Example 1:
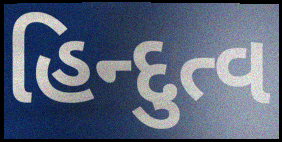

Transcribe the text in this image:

હિન્દુત્વ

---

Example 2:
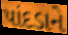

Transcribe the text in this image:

પાંદડાને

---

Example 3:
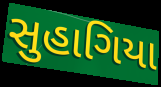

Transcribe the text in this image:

સુહાગિયા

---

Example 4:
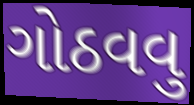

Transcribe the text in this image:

ગોઠવવુ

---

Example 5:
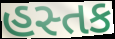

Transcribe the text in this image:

હસ્તક